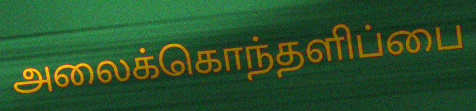
அலைக்கொந்தளிப்பை